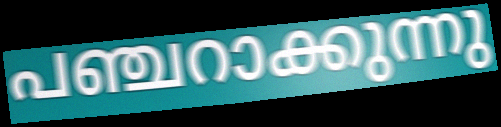
പഞ്ചറാക്കുന്നു